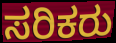
ಸರಿಕರು